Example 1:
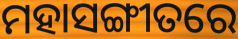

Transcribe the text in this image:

ମହାସଙ୍ଗୀତରେ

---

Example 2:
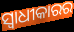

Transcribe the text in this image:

ସ୍ୱାଧୀକାରର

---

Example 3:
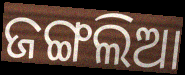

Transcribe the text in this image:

ଜଙ୍ଗଲିଆ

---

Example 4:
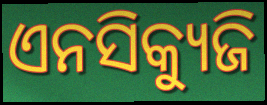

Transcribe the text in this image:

ଏନସିକ୍ୟୁଜି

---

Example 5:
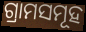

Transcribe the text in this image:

ଗ୍ରାମସମୂହ